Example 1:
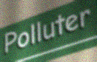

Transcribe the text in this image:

Polluter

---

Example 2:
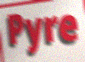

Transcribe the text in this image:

Pyre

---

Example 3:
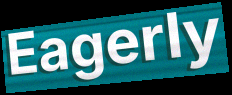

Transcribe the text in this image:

Eagerly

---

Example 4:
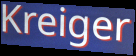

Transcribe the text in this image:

Kreiger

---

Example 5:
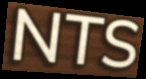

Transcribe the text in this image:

NTS